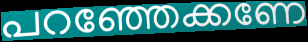
പറഞ്ഞേക്കണേ